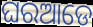
ଘରଆଡେ